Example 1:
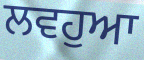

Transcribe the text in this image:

ਲਵਹੁਆ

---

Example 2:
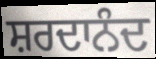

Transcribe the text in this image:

ਸ਼ਰਦਾਨੰਦ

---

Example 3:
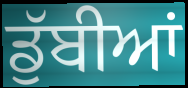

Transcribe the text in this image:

ਡੁੱਬੀਆਂ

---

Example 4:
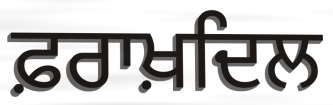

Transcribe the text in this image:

ਫ਼ਰਾਖ਼ਦਿਲ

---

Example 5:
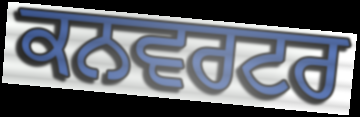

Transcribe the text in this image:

ਕਨਵਰਟਰ